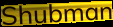
Shubman